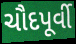
ચૌદપૂર્વી